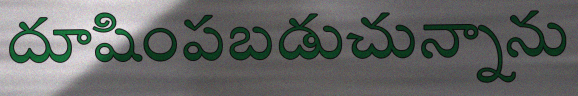
దూషింపబడుచున్నాను